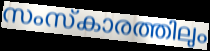
സംസ്‌കാരത്തിലും